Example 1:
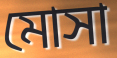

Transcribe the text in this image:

মোসা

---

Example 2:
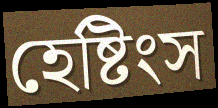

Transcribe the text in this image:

হেষ্টিংস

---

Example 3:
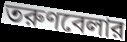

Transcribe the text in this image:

তরুণবেলার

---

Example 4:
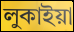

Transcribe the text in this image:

লুকাইয়া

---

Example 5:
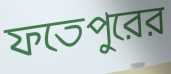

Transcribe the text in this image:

ফতেপুরের